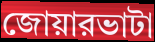
জোয়ারভাটা